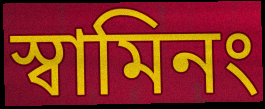
স্বামিনং